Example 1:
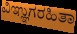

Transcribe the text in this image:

ವಿಞ್ಞುಗರಹಿತಾ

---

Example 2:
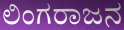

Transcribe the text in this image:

ಲಿಂಗರಾಜನ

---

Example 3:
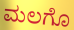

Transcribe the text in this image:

ಮಲಗೊ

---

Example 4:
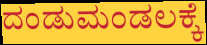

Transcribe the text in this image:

ದಂಡುಮಂಡಲಕ್ಕೆ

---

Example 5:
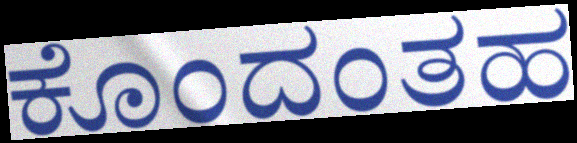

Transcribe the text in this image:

ಕೊಂದಂತಹ